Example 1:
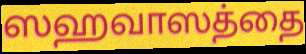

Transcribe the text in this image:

ஸஹவாஸத்தை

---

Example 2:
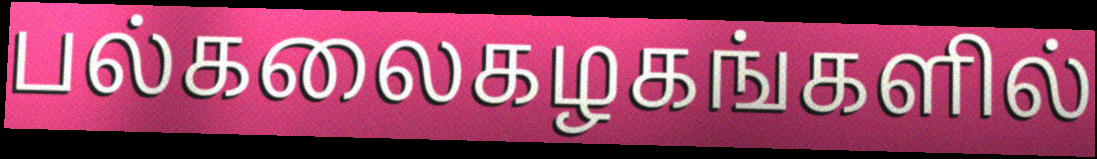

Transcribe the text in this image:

பல்கலைகழகங்களில்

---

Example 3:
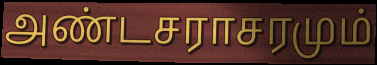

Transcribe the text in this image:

அண்டசராசரமும்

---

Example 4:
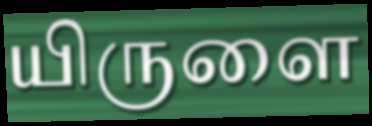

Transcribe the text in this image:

யிருளை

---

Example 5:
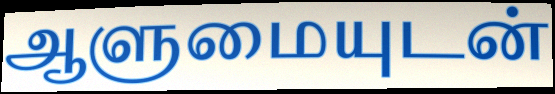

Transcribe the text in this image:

ஆளுமையுடன்